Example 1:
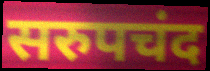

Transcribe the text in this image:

सरुपचंद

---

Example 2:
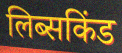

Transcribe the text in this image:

लिब्सकिंड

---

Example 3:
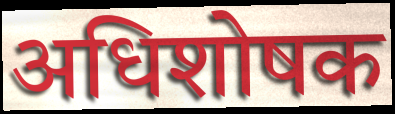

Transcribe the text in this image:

अधिशोषक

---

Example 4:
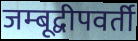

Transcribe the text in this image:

जम्बूद्वीपवर्ती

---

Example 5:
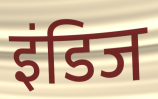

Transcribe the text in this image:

इंडिज